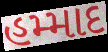
હમ્માદ